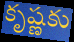
కృష్ణకు